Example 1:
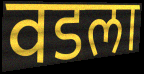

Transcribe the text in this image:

वडला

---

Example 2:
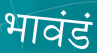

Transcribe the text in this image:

भावंडं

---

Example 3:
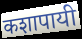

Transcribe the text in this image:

कशापायी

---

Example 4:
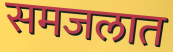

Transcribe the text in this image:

समजलात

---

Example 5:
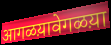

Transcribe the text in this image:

आगळय़ावेगळय़ा